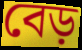
বেড়